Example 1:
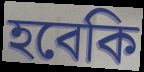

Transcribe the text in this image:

হবেকি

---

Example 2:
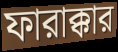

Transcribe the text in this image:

ফারাক্কার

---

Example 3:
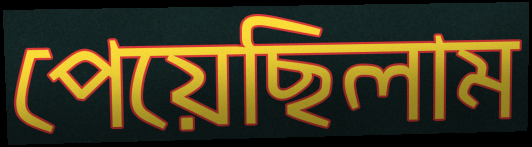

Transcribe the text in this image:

পেয়েছিলাম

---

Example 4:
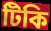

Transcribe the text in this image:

টিকি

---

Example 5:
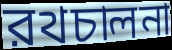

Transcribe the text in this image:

রথচালনা